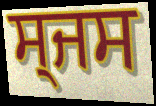
ਸ੍ਜਸ